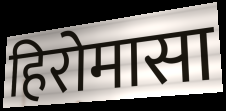
हिरोमासा